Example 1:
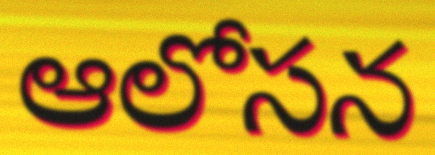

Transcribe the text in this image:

ఆలోసన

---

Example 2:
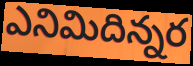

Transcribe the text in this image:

ఎనిమిదిన్నర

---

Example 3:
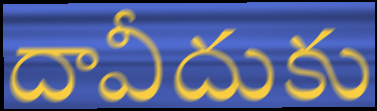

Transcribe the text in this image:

దావీదుకు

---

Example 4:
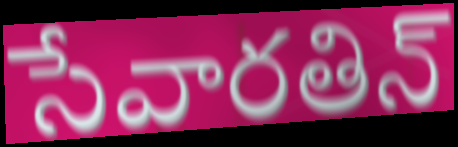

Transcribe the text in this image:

సేవారతిన్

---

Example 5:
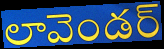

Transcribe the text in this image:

లావెండర్